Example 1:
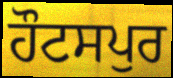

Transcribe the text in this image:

ਹੌਟਸਪੁਰ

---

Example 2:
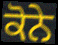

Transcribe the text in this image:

ਕੋਨੇ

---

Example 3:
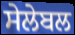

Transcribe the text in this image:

ਸੇਲੇਬਲ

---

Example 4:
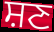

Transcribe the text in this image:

ਸ਼ਣ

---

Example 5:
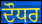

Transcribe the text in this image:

ਦੌਧਰ